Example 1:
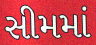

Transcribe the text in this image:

સીમમાં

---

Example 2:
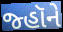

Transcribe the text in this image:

જ્હૉને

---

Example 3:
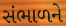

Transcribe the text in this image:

સંભાળને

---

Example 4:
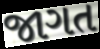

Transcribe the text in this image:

જાગત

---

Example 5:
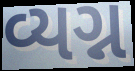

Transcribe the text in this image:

વ્યગ્ન